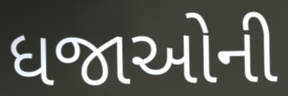
ધજાઓની